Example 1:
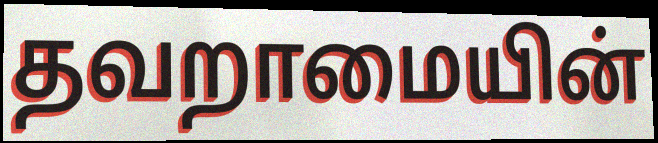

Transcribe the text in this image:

தவறாமையின்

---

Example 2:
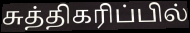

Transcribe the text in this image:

சுத்திகரிப்பில்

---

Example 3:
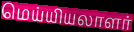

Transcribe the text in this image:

மெய்யியலாளர்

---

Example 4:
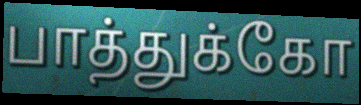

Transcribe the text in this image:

பாத்துக்கோ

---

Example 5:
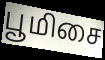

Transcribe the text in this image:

பூமிசை